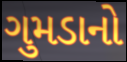
ગુમડાનો